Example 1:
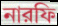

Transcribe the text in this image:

নারফি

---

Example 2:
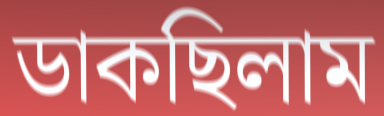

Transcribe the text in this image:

ডাকছিলাম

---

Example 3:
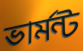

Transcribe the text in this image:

ভার্মন্ট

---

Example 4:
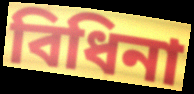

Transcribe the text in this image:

বিধিনা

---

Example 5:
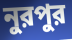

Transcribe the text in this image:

নুরপুর